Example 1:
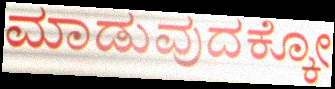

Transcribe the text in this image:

ಮಾಡುವುದಕ್ಕೋ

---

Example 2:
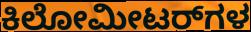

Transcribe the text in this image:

ಕಿಲೋಮೀಟರ್‌ಗಳ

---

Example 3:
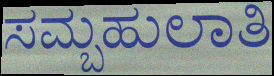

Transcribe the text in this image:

ಸಮ್ಬಹುಲಾತಿ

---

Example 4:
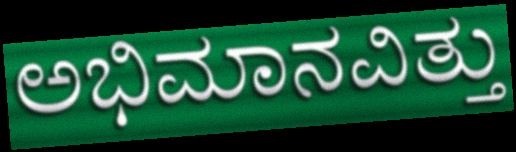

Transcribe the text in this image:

ಅಭಿಮಾನವಿತ್ತು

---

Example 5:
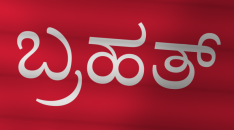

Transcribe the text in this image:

ಬ್ರಹತ್